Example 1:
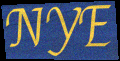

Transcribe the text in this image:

NYE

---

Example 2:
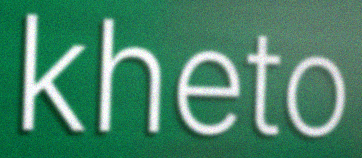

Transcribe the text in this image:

kheto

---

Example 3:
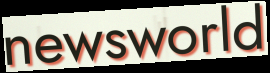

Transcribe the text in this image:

newsworld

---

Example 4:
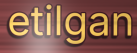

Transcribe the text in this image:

etilgan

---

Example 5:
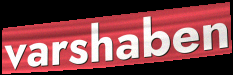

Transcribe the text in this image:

varshaben